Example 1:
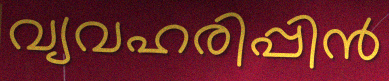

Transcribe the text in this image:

വ്യവഹരിപ്പിൻ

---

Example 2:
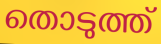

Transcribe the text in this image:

തൊടുത്ത്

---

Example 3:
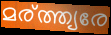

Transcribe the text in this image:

മര്ത്ത്യരേ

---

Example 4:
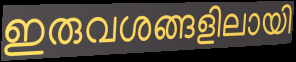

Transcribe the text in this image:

ഇരുവശങ്ങളിലായി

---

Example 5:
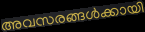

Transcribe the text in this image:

അവസരങ്ങൾക്കായി